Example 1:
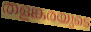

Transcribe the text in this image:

തളങ്കരയുടെ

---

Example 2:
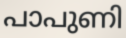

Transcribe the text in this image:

പാപുണി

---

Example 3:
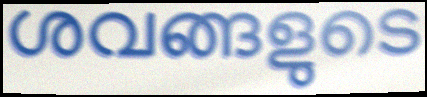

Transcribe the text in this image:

ശവങ്ങളുടെ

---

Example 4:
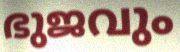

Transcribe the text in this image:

ഭുജവും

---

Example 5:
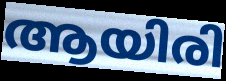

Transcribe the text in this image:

ആയിരി